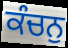
ਕੰਚਨੁ